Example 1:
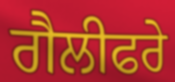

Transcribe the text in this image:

ਗੈਲੀਫਰੇ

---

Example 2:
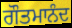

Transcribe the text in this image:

ਗੌਤਮਾਨੰਦ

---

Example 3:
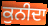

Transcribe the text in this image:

ਕੁਨੀਦਾ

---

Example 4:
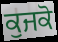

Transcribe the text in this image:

ਕੁਜਕੋ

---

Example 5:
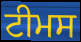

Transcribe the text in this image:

ਟੀਮਸ